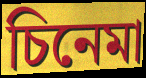
চিনেমা